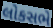
લોકસભે